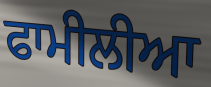
ਫਾਮੀਲੀਆ